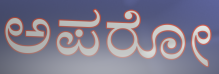
ಅಪರೋ